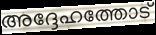
അദ്ദേഹത്തോട്